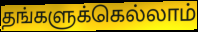
தங்களுக்கெல்லாம்